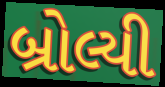
બ્રોલ્યી